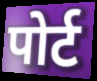
पोर्ट